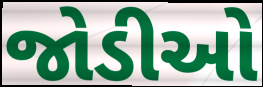
જોડીઓ